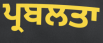
ਪ੍ਰਬਲਤਾ